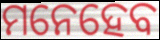
ମନେହେବ